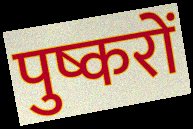
पुष्करों